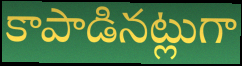
కాపాడినట్లుగా